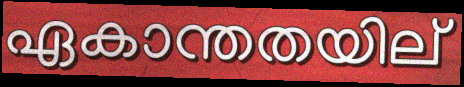
ഏകാന്തതയില്